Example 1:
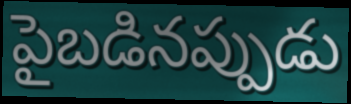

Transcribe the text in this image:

పైబడినప్పుడు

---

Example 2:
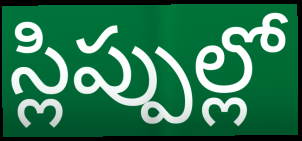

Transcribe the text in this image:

స్లిప్పుల్లో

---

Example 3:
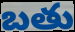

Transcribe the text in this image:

బతు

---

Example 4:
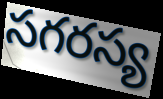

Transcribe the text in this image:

సగరస్య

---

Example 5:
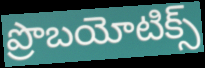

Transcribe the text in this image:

ప్రొబయోటిక్స్